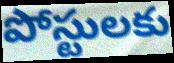
పోస్టులకు